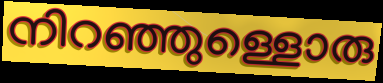
നിറഞ്ഞുള്ളൊരു